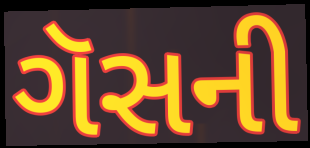
ગૅસની